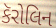
કૅરોલિન